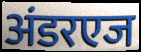
अंडरएज